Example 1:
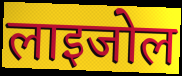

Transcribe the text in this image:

लाइजोल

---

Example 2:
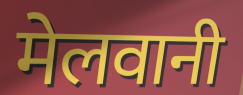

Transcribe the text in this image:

मेलवानी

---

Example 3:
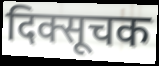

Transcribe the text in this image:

दिक्सूचक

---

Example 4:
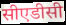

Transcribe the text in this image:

सीएडीसी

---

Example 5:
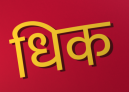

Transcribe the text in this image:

धिक